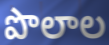
పొలాల